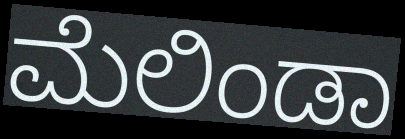
ಮೆಲಿಂಡಾ